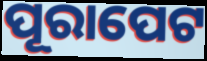
ପୂରାପେଟ